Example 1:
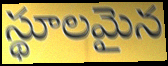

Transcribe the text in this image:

స్థూలమైన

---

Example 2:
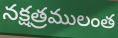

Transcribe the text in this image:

నక్షత్రములంత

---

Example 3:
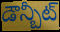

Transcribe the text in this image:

డౌన్బీట్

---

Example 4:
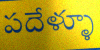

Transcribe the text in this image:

పదేళ్ళూ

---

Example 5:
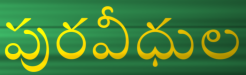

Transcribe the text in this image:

పురవీధుల